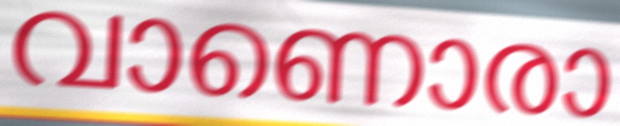
വാണൊരാ